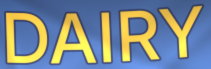
DAIRY